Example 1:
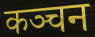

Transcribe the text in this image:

कञ्चन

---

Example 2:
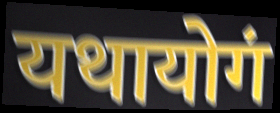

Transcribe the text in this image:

यथायोगं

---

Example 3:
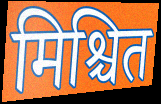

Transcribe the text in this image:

मिश्चित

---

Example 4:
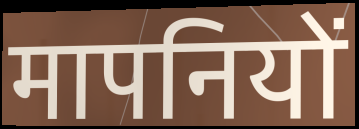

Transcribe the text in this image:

मापनियों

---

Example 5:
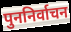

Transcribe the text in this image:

पुननिर्वाचन